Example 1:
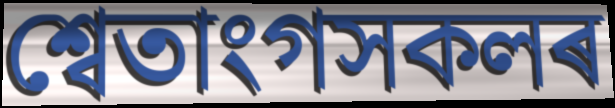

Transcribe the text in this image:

শ্বেতাংগসকলৰ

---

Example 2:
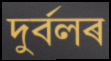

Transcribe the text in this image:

দুৰ্বলৰ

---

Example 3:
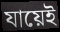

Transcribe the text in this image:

যায়েই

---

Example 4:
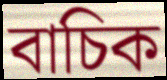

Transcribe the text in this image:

বাচিক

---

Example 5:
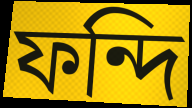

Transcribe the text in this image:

ফন্দি